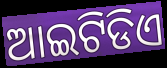
ଆଇଟିଡିଏ